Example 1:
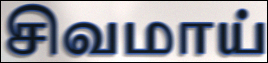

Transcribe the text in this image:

சிவமாய்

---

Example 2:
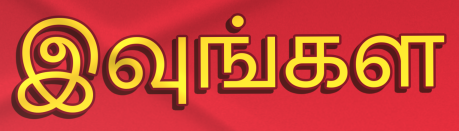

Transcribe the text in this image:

இவுங்கள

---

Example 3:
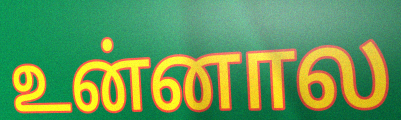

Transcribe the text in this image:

உன்னால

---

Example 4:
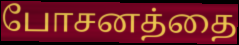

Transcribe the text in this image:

போசனத்தை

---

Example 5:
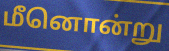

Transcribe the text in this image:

மீனொன்று